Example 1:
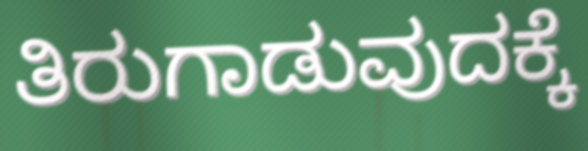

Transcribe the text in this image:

ತಿರುಗಾಡುವುದಕ್ಕೆ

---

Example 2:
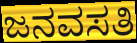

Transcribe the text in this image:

ಜನವಸತಿ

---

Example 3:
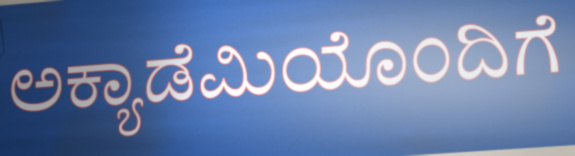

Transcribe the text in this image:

ಅಕ್ಯಾಡೆಮಿಯೊಂದಿಗೆ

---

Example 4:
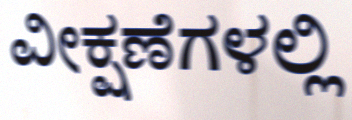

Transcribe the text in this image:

ವೀಕ್ಷಣೆಗಳಲ್ಲಿ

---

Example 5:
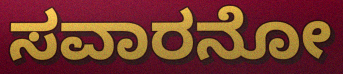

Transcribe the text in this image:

ಸವಾರನೋ